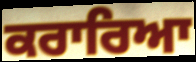
ਕਰਾਰਿਆ